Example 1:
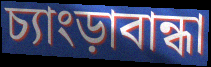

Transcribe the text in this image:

চ্যাংড়াবান্ধা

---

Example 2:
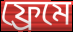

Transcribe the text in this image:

ফ্রেমে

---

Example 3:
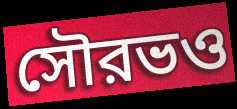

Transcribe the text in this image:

সৌরভও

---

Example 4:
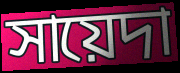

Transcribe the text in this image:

সায়েদা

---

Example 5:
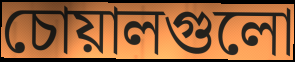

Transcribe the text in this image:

চোয়ালগুলো